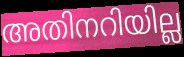
അതിനറിയില്ല